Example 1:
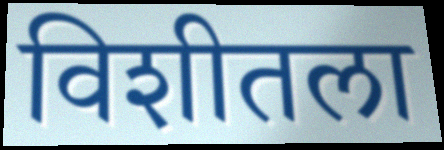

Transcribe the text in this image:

विशीतला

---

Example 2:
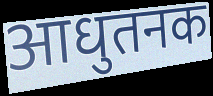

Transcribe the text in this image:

आधुतनक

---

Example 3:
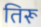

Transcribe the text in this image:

तिरू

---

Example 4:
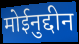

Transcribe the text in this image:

मोईनुद्दीन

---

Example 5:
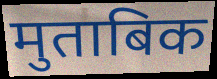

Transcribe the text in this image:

मुताबिक